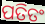
ପତିତଂ